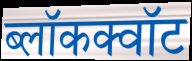
ब्लॉकक्वॉट